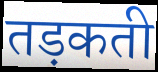
तड़कती